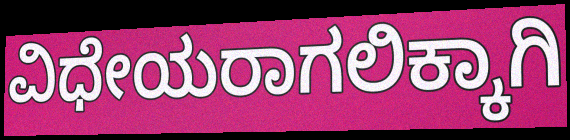
ವಿಧೇಯರಾಗಲಿಕ್ಕಾಗಿ